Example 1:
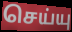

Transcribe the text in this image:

செய்யு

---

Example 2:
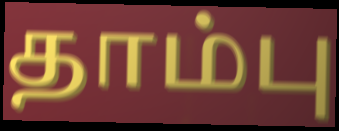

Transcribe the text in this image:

தாம்பு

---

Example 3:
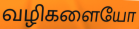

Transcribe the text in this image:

வழிகளையோ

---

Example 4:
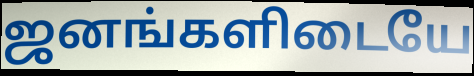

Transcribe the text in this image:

ஜனங்களிடையே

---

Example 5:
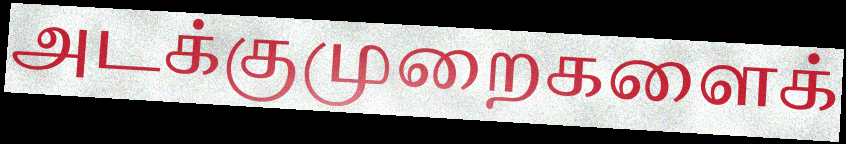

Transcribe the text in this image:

அடக்குமுறைகளைக்